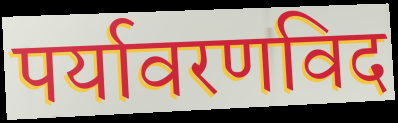
पर्यावरणविद